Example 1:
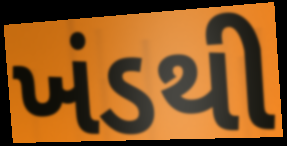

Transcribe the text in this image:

ખંડથી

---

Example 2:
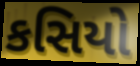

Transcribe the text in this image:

કસિયો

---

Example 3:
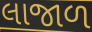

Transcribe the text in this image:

લાજાળ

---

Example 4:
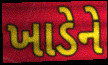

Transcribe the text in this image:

ખાડેને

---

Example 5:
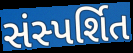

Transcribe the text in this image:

સંસ્પર્શિત